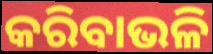
କରିବାଭଳି